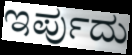
ಇರ್ಪುದು